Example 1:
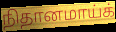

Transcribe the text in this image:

நிதானமாய்க்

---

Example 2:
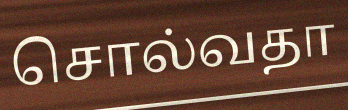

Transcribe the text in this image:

சொல்வதா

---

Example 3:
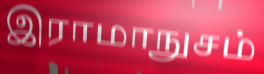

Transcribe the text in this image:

இராமாநுசம்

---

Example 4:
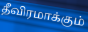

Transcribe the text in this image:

தீவிரமாக்கும்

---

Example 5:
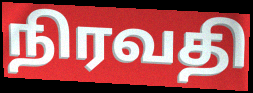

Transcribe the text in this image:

நிரவதி